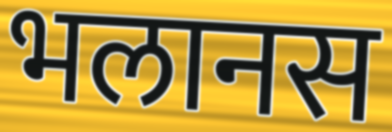
भलानस